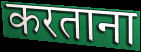
करताना